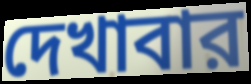
দেখাবার